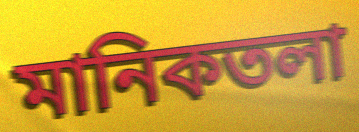
মানিকতলা